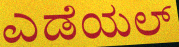
ಎಡೆಯಲ್